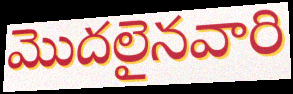
మొదలైనవారి